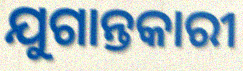
ଯୁଗାନ୍ତକାରୀ